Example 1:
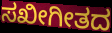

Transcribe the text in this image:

ಸಖೀಗೀತದ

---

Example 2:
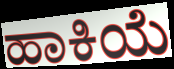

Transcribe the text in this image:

ಹಾಕಿಯೆ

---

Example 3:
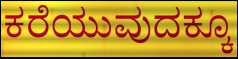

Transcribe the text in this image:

ಕರೆಯುವುದಕ್ಕೂ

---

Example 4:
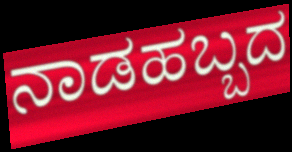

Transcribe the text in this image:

ನಾಡಹಬ್ಬದ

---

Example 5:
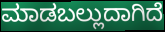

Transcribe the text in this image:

ಮಾಡಬಲ್ಲುದಾಗಿದೆ